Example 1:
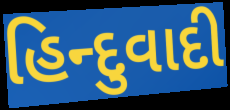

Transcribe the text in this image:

હિન્દુવાદી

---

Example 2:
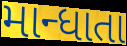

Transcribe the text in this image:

માન્ધાતા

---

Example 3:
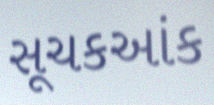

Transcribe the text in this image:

સૂચકઆંક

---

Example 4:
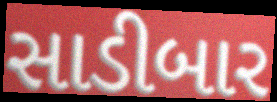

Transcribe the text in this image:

સાડીબાર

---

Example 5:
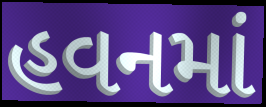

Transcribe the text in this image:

હવનમાં